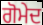
ਗੋਮੇਦ